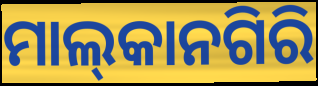
ମାଲ୍‌କାନଗିରି